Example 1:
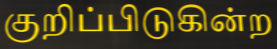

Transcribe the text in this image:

குறிப்பிடுகின்ற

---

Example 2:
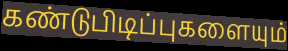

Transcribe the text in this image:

கண்டுபிடிப்புகளையும்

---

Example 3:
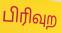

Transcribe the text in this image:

பிரிவுற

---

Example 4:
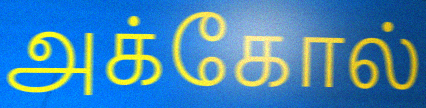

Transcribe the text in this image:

அக்கோல்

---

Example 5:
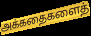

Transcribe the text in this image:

அக்கதைகளைத்